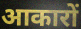
आकारों